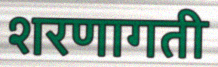
शरणागती